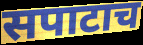
सपाटाच